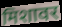
मिशावर